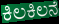
ಕಿಲಕಿಲನೆ